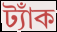
ট্যাঁক